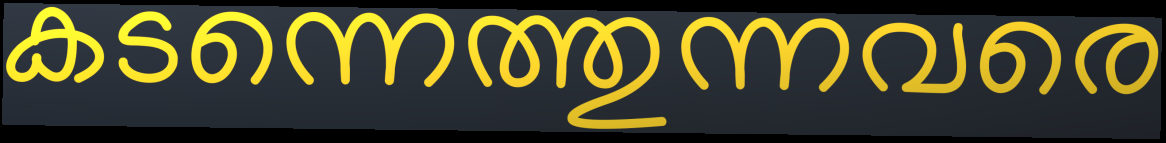
കടന്നെത്തുന്നവരെ